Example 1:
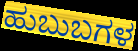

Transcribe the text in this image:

ಹುಬುಬಗಳ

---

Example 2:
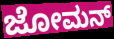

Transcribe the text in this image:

ಜೋಮನ್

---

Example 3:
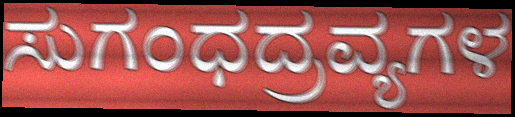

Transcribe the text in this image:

ಸುಗಂಧದ್ರವ್ಯಗಳ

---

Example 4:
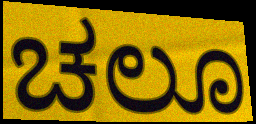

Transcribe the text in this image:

ಚಲೂ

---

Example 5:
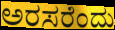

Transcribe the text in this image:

ಅರಸರೆಂದು